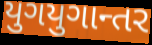
યુગયુગાન્તર